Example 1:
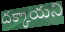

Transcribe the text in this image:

దక్కాయని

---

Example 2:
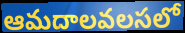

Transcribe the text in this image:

ఆమదాలవలసలో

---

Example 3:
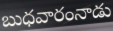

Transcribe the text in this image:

బుధవారంనాడు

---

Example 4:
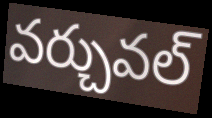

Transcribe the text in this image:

వర్చువల్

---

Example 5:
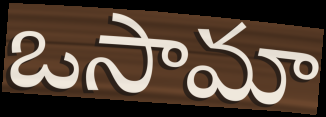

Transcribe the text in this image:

ఒసామా